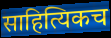
साहित्यिकच